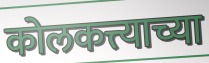
कोलकत्त्याच्या